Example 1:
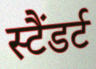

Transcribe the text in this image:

स्टैंडर्ट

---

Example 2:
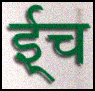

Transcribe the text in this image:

ई्च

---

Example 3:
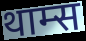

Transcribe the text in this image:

थाम्स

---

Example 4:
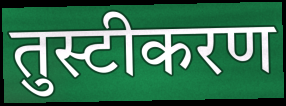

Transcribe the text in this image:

तुस्टीकरण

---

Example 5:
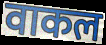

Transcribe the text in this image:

वाकल